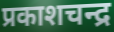
प्रकाशचन्द्र